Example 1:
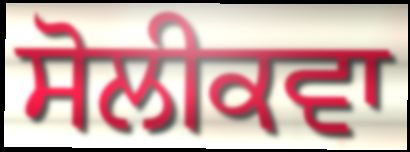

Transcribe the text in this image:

ਸੋਲੀਕਵਾ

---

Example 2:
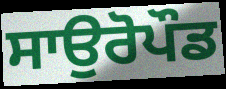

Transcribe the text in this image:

ਸਾਉਰੋਪੌਡ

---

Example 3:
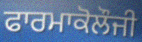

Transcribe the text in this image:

ਫਾਰਮਾਕੋਲੌਜੀ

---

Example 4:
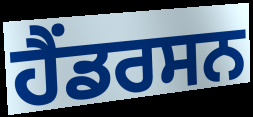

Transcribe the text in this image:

ਹੈਂਡਰਸਨ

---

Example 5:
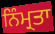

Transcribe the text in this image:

ਨਿੰਮ੍ਰਤਾ